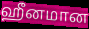
ஹீனமான